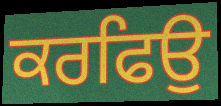
ਕਰਫਿਉ